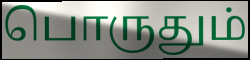
பொருதும்